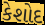
કેશોદ